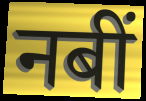
नबीं